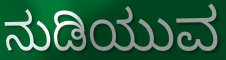
ನುಡಿಯುವ